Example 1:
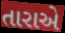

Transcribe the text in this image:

તારાએ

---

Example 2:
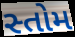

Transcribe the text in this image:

સ્તોમ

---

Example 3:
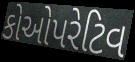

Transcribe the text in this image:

કોઓપરેટિવ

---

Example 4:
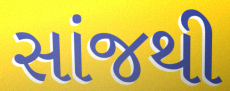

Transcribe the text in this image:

સાંજથી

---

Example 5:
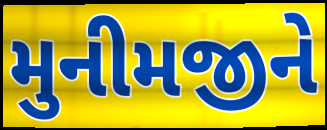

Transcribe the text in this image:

મુનીમજીને